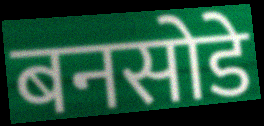
बनसोडे